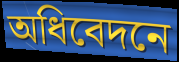
অধিবেদনে